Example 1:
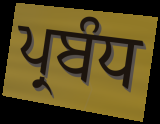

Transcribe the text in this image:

ਪ੍ਰਬੰਧ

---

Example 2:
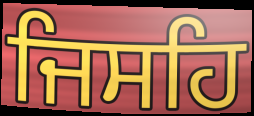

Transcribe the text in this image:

ਜਿਸਹਿ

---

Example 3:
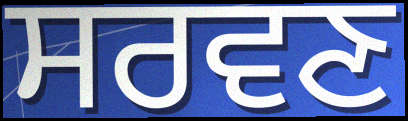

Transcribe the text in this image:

ਸਰਵਣ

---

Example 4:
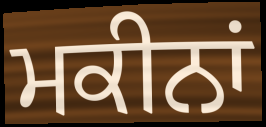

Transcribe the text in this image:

ਮਕੀਨਾਂ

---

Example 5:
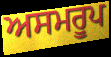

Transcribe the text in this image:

ਅਸਮਰੂਪ